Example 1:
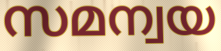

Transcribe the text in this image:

സമന്വയ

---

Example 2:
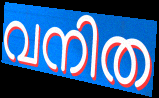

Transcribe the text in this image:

വനിത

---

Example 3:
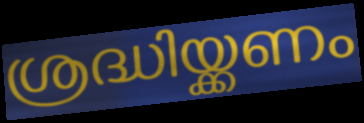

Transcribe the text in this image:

ശ്രദ്ധിയ്ക്കണം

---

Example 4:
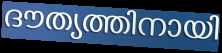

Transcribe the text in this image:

ദൗത്യത്തിനായി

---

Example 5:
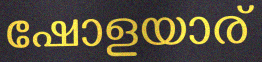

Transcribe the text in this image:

ഷോളയാര്